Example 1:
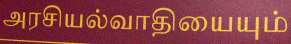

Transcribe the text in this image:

அரசியல்வாதியையும்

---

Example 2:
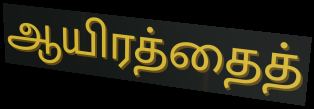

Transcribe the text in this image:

ஆயிரத்தைத்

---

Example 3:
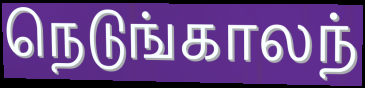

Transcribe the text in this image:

நெடுங்காலந்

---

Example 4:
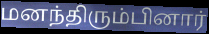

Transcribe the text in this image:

மனந்திரும்பினார்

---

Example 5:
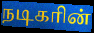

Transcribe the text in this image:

நடிகரின்